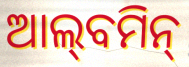
ଆଲ୍‌ବମିନ୍